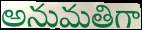
అనుమతిగా